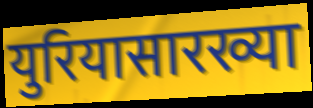
युरियासारख्या